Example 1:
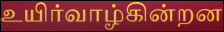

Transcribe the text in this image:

உயிர்வாழ்கின்றன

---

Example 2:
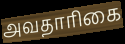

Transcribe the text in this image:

அவதாரிகை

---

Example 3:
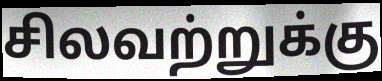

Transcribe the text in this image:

சிலவற்றுக்கு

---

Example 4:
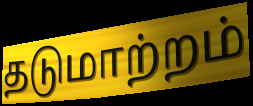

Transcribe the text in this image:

தடுமாற்றம்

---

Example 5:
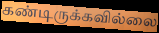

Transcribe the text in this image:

கண்டிருக்கவில்லை